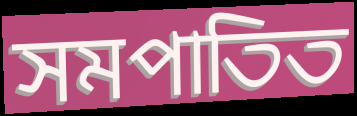
সমপাতিত